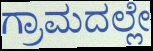
ಗ್ರಾಮದಲ್ಲೇ